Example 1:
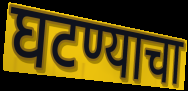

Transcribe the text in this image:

घटण्याचा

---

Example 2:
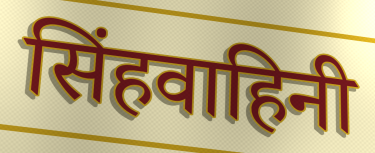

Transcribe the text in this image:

सिंहवाहिनी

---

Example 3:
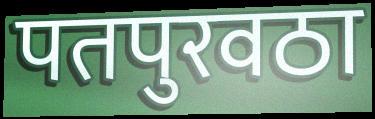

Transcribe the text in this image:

पतपुरवठा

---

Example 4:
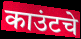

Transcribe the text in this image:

काउंटचे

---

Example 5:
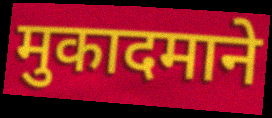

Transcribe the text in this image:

मुकादमाने